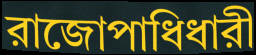
রাজোপাধিধারী